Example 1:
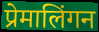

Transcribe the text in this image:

प्रेमालिंगन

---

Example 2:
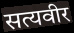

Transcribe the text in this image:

सत्यवीर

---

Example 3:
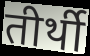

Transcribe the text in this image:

तीर्थी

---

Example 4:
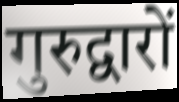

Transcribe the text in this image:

गुरुद्वारों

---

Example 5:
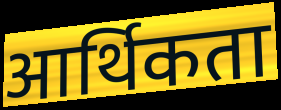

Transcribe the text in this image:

आर्थिकता